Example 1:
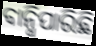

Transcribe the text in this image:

ବାନ୍ଧିପାରିଛି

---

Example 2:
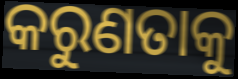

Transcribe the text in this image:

କରୁଣତାକୁ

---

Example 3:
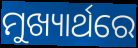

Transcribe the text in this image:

ମୁଖ୍ୟାର୍ଥରେ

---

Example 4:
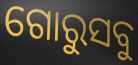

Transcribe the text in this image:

ଗୋରୁସବୁ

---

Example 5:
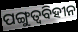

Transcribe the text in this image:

ପଙ୍ଗୁତ୍ୱବିହୀନ